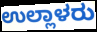
ಉಲ್ಲಾಳರು